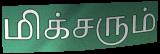
மிக்சரும்